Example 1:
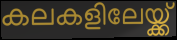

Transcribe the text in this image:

കലകളിലേയ്ക്ക്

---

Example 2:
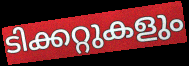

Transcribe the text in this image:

ടിക്കറ്റുകളും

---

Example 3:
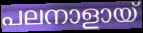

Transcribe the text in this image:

പലനാളായ്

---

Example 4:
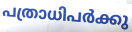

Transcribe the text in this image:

പത്രാധിപർക്കു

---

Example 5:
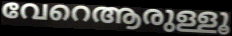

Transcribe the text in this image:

വേറെആരുള്ളൂ